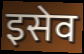
इसेव